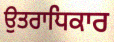
ਉਤਰਾਧਿਕਾਰ